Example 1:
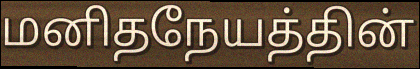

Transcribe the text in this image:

மனிதநேயத்தின்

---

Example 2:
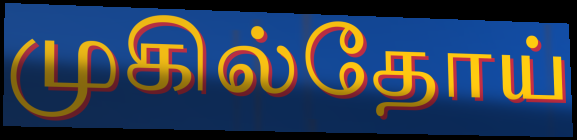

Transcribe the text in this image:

முகில்தோய்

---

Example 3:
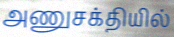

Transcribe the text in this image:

அணுசக்தியில்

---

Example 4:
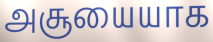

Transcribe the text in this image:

அசூயையாக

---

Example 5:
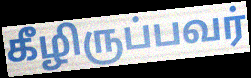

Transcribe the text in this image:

கீழிருப்பவர்